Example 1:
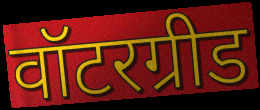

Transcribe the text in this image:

वॉटरग्रीड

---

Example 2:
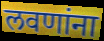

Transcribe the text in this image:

लवणांना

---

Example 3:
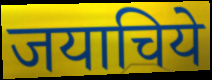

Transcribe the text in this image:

जयाचिये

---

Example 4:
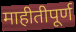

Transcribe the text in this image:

माहीतीपूर्ण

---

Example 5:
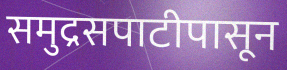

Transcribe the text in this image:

समुद्रसपाटीपासून